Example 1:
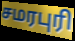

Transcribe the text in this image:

சமரபுரி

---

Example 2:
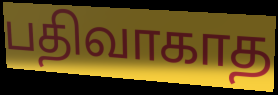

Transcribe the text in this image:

பதிவாகாத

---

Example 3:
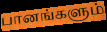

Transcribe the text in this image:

பானங்களும்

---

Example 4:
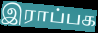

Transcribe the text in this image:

இராப்பக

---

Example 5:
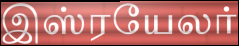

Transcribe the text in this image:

இஸ்ரயேலர்